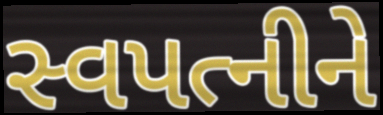
સ્વપત્નીને